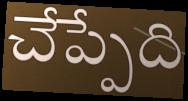
చేప్పేది